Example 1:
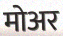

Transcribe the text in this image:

मोअर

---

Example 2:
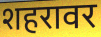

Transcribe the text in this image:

शहरावर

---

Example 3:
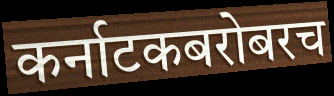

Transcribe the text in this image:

कर्नाटकबरोबरच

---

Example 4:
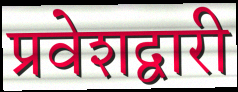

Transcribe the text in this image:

प्रवेशद्वारी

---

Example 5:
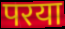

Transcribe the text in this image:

परया